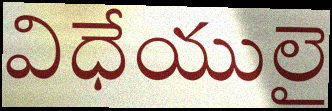
విధేయులై